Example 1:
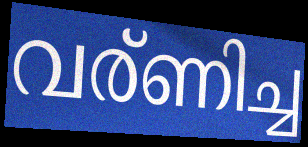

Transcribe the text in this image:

വര്ണിച്ച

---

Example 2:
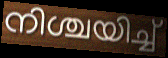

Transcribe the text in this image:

നിശ്ചയിച്ച്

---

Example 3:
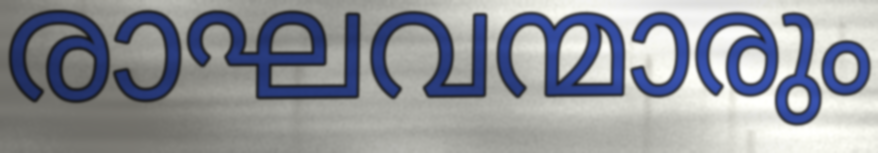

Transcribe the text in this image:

രാഘവന്മാരും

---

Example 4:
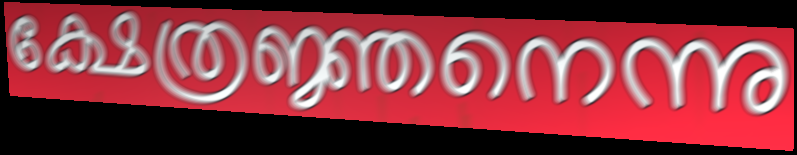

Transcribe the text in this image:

ക്ഷേത്രജ്ഞനെന്നു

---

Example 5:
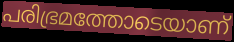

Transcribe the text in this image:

പരിഭ്രമത്തോടെയാണ്